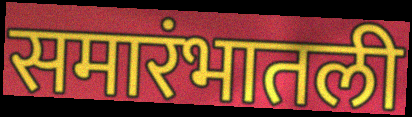
समारंभातली